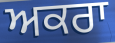
ਅਕਰਾ